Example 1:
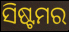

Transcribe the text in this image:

ସିଷ୍ଟମର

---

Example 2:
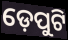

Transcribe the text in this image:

ଡ଼େପୁଟି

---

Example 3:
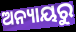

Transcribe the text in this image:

ଅନ୍ୟାୟରୁ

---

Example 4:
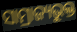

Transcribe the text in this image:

ସାମ୍ରାଜ୍ୟଭୁକ୍ତ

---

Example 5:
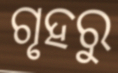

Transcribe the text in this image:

ଗୃହରୁ